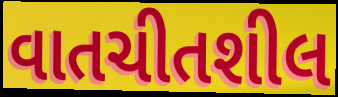
વાતચીતશીલ